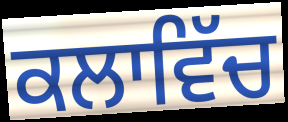
ਕਲਾਵਿੱਚ